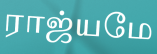
ராஜ்யமே